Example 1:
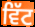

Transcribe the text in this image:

ਵਿੱਟ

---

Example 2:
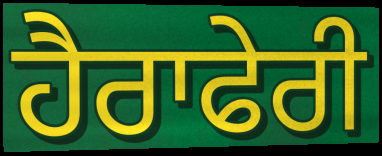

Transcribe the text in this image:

ਹੈਰਾਫੇਰੀ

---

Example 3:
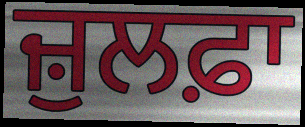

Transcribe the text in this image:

ਜ਼ੁਲਫ਼ਾ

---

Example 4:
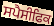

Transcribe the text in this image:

ਸਪੈਸੀਫਿਕ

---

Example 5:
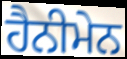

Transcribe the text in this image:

ਹੈਨੀਮੇਨ